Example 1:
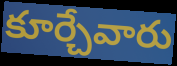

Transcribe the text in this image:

కూర్చేవారు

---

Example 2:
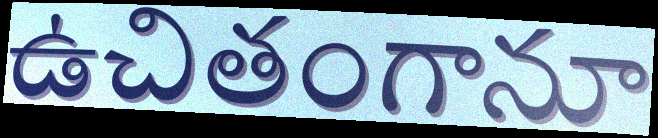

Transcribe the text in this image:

ఉచితంగానూ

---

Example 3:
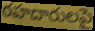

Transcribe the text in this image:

రహదారులపై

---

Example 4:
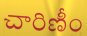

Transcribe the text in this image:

చారిణీం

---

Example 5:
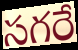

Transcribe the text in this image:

సగరే